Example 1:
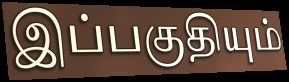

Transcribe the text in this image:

இப்பகுதியும்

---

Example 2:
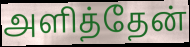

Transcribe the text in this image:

அளித்தேன்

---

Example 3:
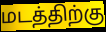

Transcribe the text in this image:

மடத்திற்கு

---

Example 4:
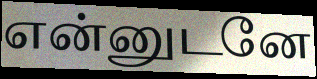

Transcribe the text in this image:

என்னுடனே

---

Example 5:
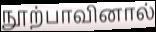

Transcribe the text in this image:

நூற்பாவினால்